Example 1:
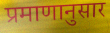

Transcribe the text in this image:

प्रमाणानुसार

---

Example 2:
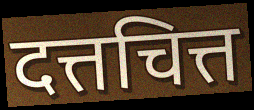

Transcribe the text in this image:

दत्तचित्त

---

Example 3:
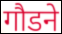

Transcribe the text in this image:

गौडने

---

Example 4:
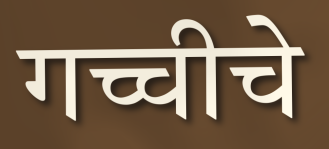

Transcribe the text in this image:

गच्चीचे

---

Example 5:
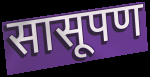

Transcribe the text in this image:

सासूपण